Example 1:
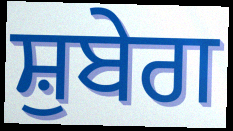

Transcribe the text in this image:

ਸ਼ੁਬੇਗ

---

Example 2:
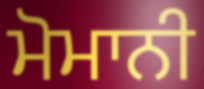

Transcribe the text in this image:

ਮੋਮਾਨੀ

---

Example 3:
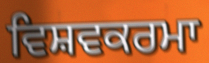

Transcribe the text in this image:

ਵਿਸ਼ਵਕਰਮਾ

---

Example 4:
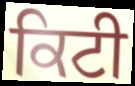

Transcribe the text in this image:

ਕਿਟੀ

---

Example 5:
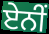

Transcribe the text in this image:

ਏਨੀਂ